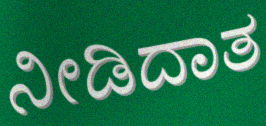
ನೀಡಿದಾತ